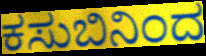
ಕಸುಬಿನಿಂದ